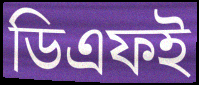
ডিএফই